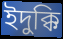
ইদুক্কি